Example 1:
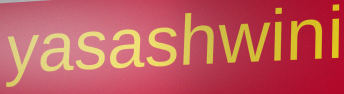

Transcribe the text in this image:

yasashwini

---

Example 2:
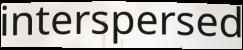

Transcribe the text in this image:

interspersed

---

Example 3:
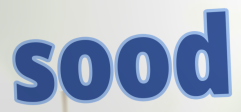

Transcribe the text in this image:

sood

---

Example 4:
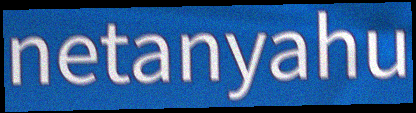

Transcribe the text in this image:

netanyahu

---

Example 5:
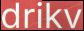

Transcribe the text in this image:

drikv